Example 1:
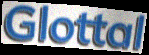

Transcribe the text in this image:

Glottal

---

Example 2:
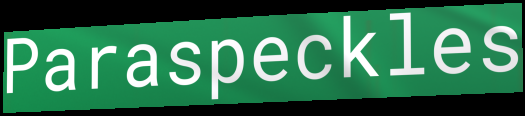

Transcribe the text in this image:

Paraspeckles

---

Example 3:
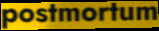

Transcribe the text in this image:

postmortum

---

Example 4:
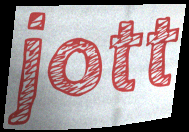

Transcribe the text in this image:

jott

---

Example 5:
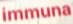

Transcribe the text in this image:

immuna